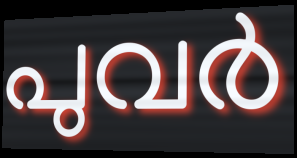
പുവർ